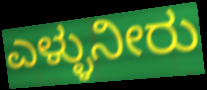
ಎಳ್ಳುನೀರು